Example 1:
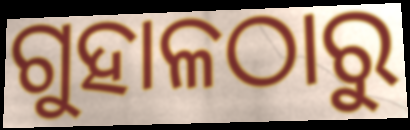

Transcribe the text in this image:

ଗୁହାଳଠାରୁ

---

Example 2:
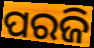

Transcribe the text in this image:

ପରଜି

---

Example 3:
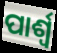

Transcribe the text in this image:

ପାର୍ଶ୍ବ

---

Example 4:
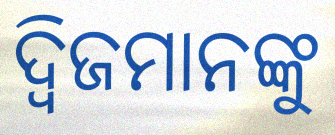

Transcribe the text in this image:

ଦ୍ୱିଜମାନଙ୍କୁ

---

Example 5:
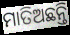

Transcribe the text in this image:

ମାତିଅଛନ୍ତି